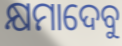
କ୍ଷମାଦେବୁ